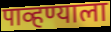
पाव्हण्याला